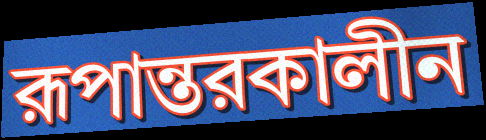
রূপান্তরকালীন